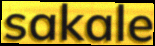
sakale